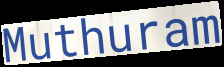
Muthuram